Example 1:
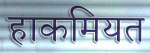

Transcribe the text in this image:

हाकमियत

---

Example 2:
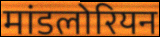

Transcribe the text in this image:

मांडलोरियन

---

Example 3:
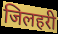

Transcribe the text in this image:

जिलहरी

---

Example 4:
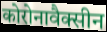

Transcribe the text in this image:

कोरोनावैक्सीन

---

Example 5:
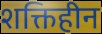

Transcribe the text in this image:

शक्तिहीन